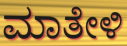
ಮಾತೇಳಿ